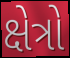
ક્ષેત્રો